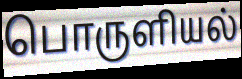
பொருளியல்